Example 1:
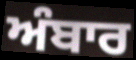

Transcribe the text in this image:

ਅੰਬਾਰ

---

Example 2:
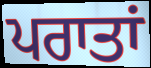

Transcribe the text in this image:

ਪਰਾਤਾਂ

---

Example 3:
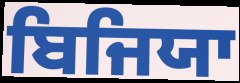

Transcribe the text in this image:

ਬਿਜਿਯਾ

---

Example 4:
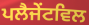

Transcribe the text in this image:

ਪਲੈਜੇਂਟਵਿਲ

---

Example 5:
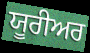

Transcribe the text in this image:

ਯੂਰੀਅਰ